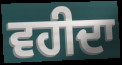
ਵਹੀਦਾ